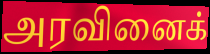
அரவினைக்